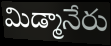
మిడ్మానేరు